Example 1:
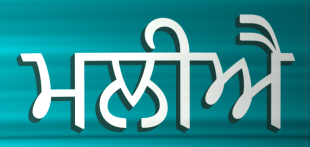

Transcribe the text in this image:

ਮਲੀਐ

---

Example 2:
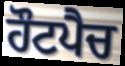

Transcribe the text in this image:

ਹੌਟਪੈਚ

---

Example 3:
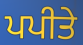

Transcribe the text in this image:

ਪਪੀਤੇ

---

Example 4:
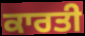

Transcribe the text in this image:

ਕਾਰਤੀ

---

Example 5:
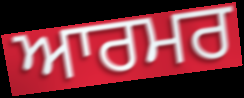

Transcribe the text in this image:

ਆਰਮਰ